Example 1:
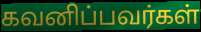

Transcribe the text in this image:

கவனிப்பவர்கள்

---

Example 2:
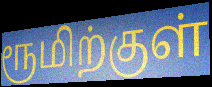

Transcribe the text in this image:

ரூமிற்குள்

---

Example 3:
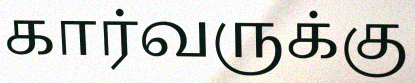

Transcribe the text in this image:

கார்வருக்கு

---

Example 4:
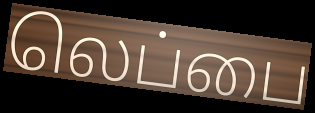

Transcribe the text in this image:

லெப்பை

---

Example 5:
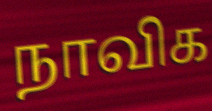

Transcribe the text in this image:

நாவிக